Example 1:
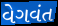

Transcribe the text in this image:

વેગવંત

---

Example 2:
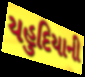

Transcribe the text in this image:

યહુદિયાની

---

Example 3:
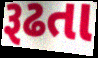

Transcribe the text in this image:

રૂઢતા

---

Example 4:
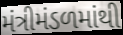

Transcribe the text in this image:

મંત્રીમંડળમાંથી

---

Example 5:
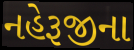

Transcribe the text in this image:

નહેરૂજીના